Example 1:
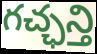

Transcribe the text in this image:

గచ్ఛన్తి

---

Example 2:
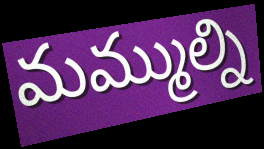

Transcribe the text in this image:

మమ్ముల్ని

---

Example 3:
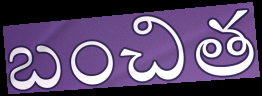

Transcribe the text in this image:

బంచిత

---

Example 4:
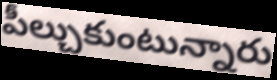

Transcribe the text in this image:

పీల్చుకుంటున్నారు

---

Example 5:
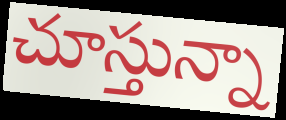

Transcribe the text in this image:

చూస్తున్నా